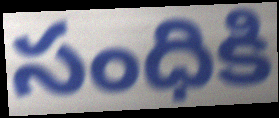
సంధికి